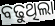
ବଢୁଥିଲା